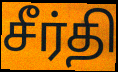
சீர்தி